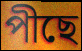
পীছে